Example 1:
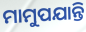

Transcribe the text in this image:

ମାମୁପଯାନ୍ତି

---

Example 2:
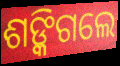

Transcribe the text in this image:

ଶଙ୍କିଗଲେ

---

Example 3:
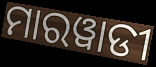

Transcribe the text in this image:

ମାରୱାଡୀ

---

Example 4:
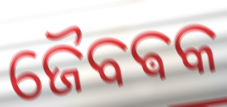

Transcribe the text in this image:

ଜୈବଵକ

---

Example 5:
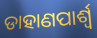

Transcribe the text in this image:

ଡାହାଣପାର୍ଶ୍ୱ